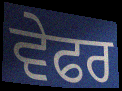
ਵੇਫਰ